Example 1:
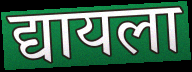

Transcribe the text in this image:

द्यायला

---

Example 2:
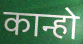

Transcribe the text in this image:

कान्हो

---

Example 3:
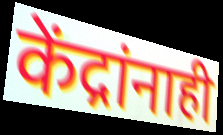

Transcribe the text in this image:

केंद्रांनाही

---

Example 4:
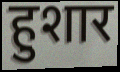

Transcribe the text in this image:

हुशार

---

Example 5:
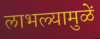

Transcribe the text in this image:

लाभल्यामुळें